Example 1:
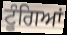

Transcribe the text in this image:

ਟੂੰਗਿਆਂ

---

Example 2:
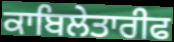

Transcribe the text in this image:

ਕਾਬਿਲੇਤਾਰੀਫ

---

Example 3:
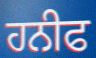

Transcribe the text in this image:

ਹਨੀਫ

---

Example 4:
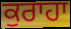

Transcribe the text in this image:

ਕੁਰਾਹਾ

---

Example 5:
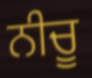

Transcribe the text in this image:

ਨੀਚੂ